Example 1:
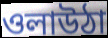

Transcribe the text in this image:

ওলাউঠা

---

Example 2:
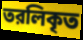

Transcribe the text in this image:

তরলিকৃত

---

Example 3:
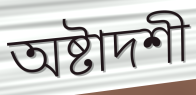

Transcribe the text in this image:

অষ্টাদশী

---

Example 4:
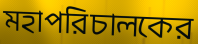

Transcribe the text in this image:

মহাপরিচালকের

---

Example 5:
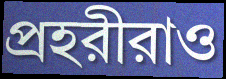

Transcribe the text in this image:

প্রহরীরাও